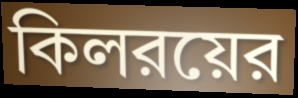
কিলরয়ের